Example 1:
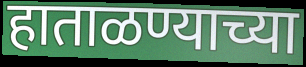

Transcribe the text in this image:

हाताळण्याच्या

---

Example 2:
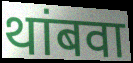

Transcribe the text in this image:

थांबवा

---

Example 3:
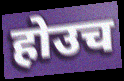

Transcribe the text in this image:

होउच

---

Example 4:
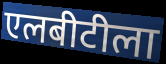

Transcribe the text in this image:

एलबीटीला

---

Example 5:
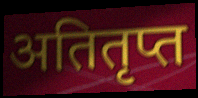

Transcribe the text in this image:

अतितृप्त